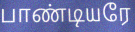
பாண்டியரே